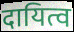
दायित्व